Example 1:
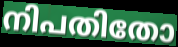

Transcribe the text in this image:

നിപതിതോ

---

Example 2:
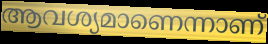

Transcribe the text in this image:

ആവശ്യമാണെന്നാണ്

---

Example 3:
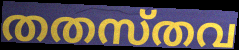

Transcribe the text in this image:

തതസ്തവ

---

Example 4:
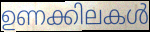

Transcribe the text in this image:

ഉണക്കിലകൾ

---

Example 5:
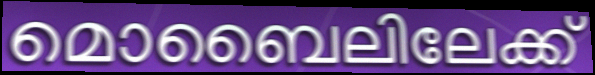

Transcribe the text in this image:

മൊബൈലിലേക്ക്